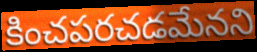
కించపరచడమేనని